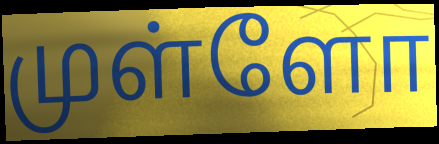
முள்ளோ